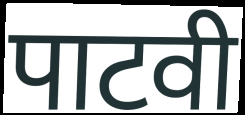
पाटवी